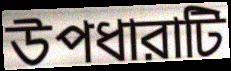
উপধারাটি